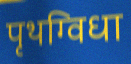
पृथग्विधा